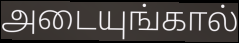
அடையுங்கால்